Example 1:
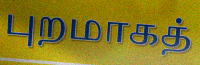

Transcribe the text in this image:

புறமாகத்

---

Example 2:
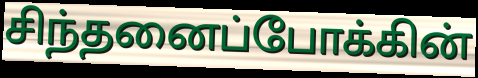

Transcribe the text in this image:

சிந்தனைப்போக்கின்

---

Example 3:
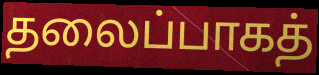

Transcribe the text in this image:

தலைப்பாகத்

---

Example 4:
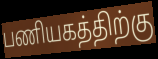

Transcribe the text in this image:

பணியகத்திற்கு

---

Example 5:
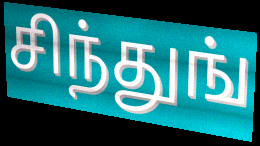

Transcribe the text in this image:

சிந்துங்